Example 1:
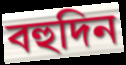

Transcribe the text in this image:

বহুদিন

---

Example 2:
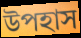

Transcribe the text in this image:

উপহাস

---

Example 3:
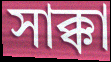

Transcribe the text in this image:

সাক্কা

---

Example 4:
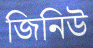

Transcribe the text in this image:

জিনিউ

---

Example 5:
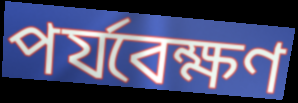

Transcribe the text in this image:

পর্যবেক্ষণ